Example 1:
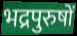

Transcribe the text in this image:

भद्रपुरुषों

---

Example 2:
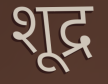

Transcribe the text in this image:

शूद्र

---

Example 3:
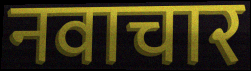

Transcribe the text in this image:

नवाचार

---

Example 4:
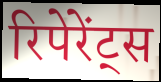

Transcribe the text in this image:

रिपेरेंट्स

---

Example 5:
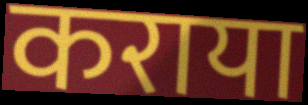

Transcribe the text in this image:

कराया